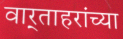
वार्ताहरांच्या